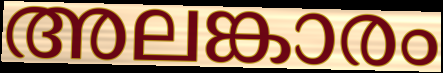
അലങ്കാരം